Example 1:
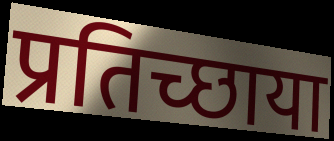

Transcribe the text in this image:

प्रतिच्छाया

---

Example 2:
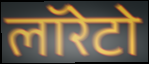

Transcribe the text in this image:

लॉरेटो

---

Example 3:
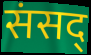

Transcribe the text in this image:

संसद्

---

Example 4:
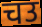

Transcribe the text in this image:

चउ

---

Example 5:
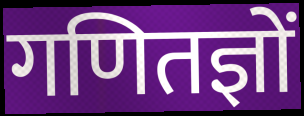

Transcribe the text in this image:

गणितज्ञों